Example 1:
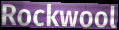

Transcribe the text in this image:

Rockwool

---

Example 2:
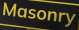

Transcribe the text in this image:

Masonry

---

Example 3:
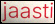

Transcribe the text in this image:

jaasti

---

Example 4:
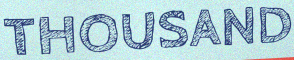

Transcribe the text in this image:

THOUSAND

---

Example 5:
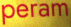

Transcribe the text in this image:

peram